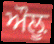
ਔਲ਼ੂ